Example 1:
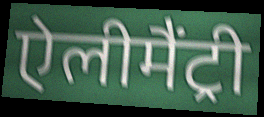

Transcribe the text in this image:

ऐलीमैंट्री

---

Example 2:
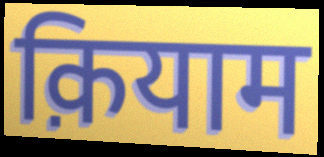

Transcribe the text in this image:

क़ियाम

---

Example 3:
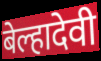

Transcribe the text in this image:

बेल्हादेवी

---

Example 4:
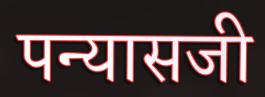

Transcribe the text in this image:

पन्यासजी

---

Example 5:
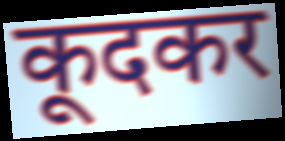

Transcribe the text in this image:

कूदकर